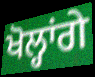
ਖੋਲ੍ਹਾਂਗੇ